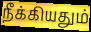
நீக்கியதும்